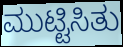
ಮುಟ್ಟಿಸಿತು